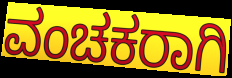
ವಂಚಕರಾಗಿ